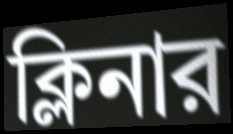
ক্লিনার